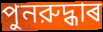
পুনৰুদ্ধাৰ